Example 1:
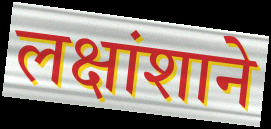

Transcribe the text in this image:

लक्षांशाने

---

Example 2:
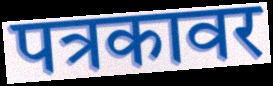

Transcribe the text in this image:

पत्रकावर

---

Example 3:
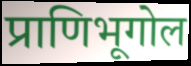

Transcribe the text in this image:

प्राणिभूगोल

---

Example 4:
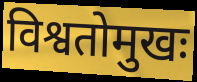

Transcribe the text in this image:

विश्वतोमुखः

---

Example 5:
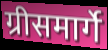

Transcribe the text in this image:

ग्रीसमार्गे